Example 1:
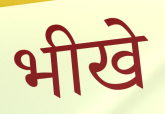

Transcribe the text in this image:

भीखे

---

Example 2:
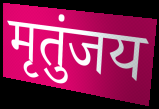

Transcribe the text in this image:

मृतुंजय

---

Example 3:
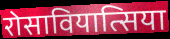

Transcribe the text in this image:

रोसावियात्सिया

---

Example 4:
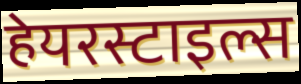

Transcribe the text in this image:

हेयरस्टाइल्स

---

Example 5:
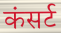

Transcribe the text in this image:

कंसर्ट